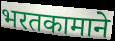
भरतकामाने